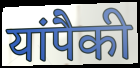
यांपैकी